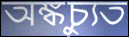
অঙ্কচ্যুত